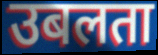
उबलता